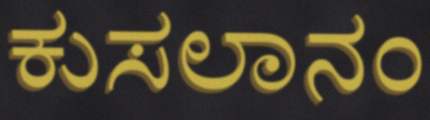
ಕುಸಲಾನಂ